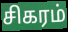
சிகரம்